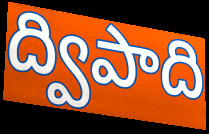
ద్విపాది